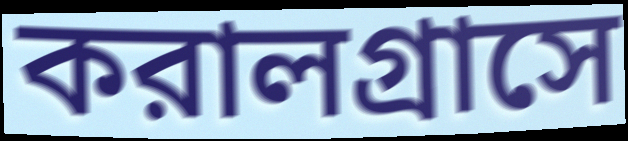
করালগ্রাসে